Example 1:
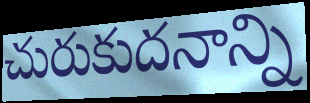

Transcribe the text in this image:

చురుకుదనాన్ని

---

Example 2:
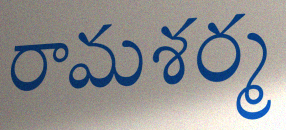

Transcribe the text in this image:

రామశర్మ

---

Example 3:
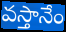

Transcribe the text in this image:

వస్తానేం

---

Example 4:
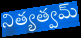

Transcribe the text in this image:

నిత్యత్వమ్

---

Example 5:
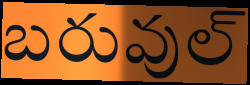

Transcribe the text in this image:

బరువుల్